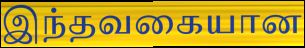
இந்தவகையான